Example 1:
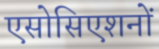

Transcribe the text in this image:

एसोसिएशनों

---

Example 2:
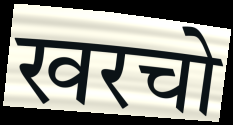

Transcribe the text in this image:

खरचो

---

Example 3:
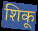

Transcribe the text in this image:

शिकू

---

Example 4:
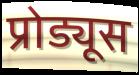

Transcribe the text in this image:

प्रोड्यूस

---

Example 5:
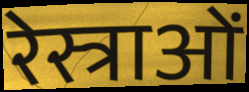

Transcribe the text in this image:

रेस्त्राओं